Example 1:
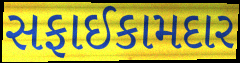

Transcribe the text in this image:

સફાઈકામદાર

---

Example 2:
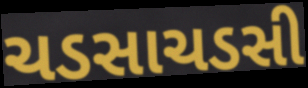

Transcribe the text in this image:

ચડસાચડસી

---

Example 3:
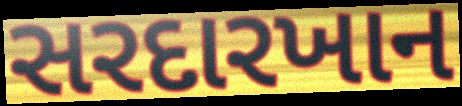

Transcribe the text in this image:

સરદારખાન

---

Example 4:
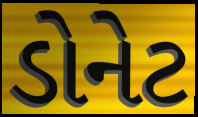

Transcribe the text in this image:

ડોનેટ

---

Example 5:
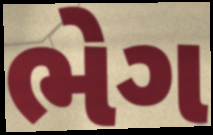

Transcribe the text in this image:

ભેગ